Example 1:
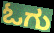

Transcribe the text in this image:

ಓಗು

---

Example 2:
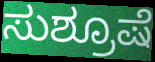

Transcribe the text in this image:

ಸುಶ್ರೂಷೆ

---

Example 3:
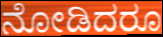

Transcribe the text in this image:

ನೋಡಿದರೂ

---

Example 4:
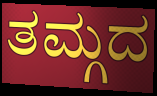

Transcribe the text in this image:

ತಮ್ಗದ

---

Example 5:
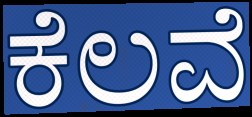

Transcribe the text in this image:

ಕೆಲವೆ